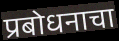
प्रबोधनाचा